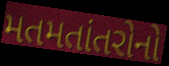
મતમતાંતરોનો